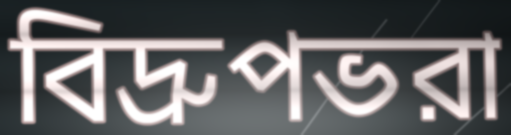
বিদ্রুপভরা